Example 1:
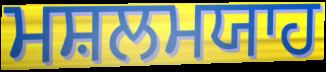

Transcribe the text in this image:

ਮਸ਼ਲਮਯਾਹ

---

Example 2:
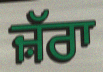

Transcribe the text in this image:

ਜ਼ੱਰਾ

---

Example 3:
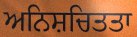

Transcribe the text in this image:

ਅਨਿਸ਼ਚਿਤਤਾ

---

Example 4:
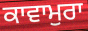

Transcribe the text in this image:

ਕਾਵਾਮੁਰਾ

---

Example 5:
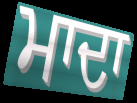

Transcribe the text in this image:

ਮਾਦਾ